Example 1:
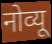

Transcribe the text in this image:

नोव्यू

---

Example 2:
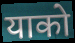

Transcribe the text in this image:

याको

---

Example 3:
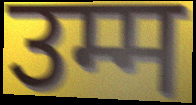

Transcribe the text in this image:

उम्म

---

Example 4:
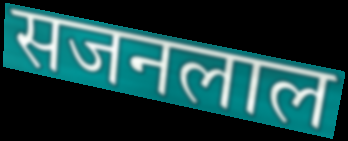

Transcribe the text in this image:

सजनलाल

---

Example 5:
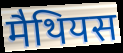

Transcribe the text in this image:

मैथियस